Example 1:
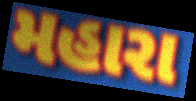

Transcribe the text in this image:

મહારા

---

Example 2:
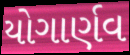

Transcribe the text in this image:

યોગાર્ણવ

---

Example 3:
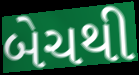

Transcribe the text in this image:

બેચથી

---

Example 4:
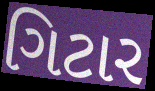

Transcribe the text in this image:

ગિટાર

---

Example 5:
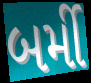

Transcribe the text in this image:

બર્મી